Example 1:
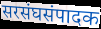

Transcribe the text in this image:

सरसंघसंपादक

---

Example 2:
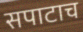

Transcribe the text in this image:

सपाटाच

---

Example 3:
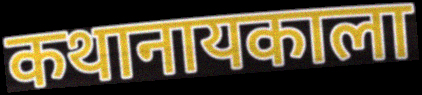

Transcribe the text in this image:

कथानायकाला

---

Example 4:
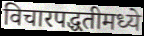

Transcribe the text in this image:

विचारपद्धतीमध्ये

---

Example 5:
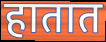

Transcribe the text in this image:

हातात